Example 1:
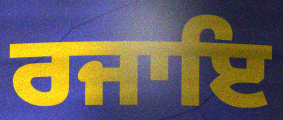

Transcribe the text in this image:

ਰਜਾਇ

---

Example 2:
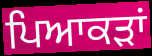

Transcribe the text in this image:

ਪਿਆਕੜਾਂ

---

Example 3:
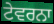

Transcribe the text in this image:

ਟੇਵਰਨਾ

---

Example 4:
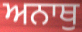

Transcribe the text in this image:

ਅਨਾਥੁ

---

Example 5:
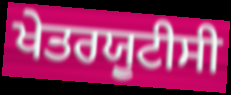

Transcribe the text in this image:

ਖੇਤਰਯੂਟੀਸੀ